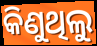
କିଣୁଥିଲୁ